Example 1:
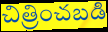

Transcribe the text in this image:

చిత్రించబడి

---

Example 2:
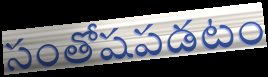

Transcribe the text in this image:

సంతోషపడటం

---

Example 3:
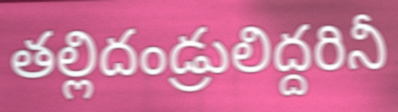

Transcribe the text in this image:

తల్లిదండ్రులిద్దరినీ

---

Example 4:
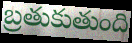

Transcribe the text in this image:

బ్రతుకుతుంది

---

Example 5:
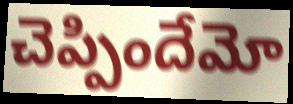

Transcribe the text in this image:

చెప్పిందేమో